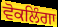
ਵੋਕਲਿੰਗਾ